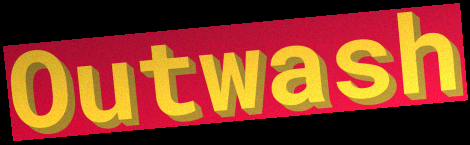
Outwash